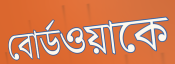
বোর্ডওয়াকে